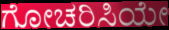
ಗೋಚರಿಸಿಯೇ